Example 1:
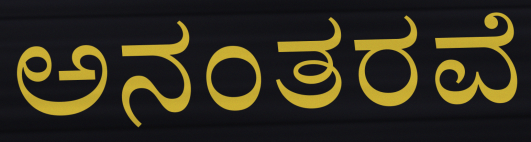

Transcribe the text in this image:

ಅನಂತರವೆ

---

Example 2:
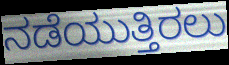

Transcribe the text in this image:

ನಡೆಯುತ್ತಿರಲು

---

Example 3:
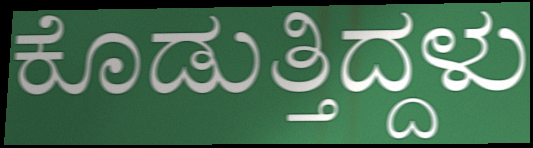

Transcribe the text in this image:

ಕೊಡುತ್ತಿದ್ದಳು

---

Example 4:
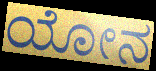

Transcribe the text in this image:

ಯೋನ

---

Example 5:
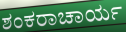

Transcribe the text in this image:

ಶಂಕರಾಚಾರ್ಯ